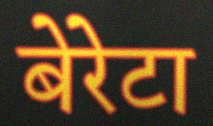
बेरेटा